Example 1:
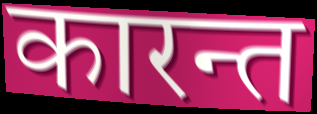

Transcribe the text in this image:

कारन्त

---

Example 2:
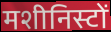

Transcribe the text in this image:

मशीनिस्टों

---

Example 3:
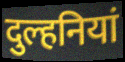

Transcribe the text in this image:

दुल्हनियां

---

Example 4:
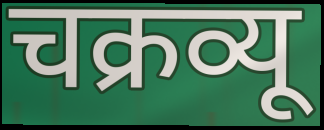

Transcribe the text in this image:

चक्रव्यू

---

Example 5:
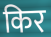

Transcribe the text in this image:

किर